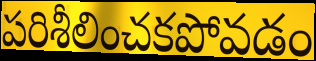
పరిశీలించకపోవడం